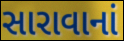
સારાવાનાં